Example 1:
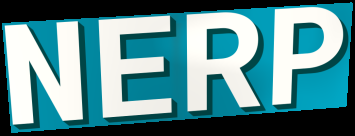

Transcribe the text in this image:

NERP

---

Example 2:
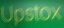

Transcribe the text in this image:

Upstox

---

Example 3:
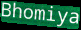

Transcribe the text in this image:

Bhomiya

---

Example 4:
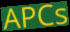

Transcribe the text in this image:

APCs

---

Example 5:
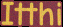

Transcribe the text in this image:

Itthi